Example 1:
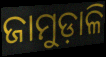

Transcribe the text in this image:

ଜାମୁଡ଼ାଳି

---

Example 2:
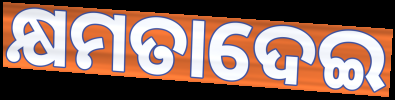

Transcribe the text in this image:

କ୍ଷମତାଦେଇ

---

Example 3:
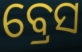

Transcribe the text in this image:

ବ୍ରେସ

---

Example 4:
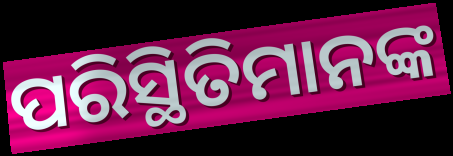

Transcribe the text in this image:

ପରିସ୍ଥିତିମାନଙ୍କ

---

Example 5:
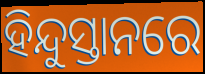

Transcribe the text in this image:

ହିନ୍ଦୁସ୍ତାନରେ